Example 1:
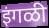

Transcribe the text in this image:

इंगळी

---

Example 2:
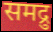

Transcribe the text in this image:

समद्रु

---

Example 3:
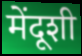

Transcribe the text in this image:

मेंदूशी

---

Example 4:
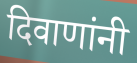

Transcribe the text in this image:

दिवाणांनी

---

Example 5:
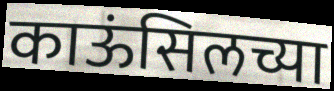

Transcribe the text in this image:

काऊंसिलच्या